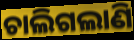
ଚାଲିଗଲାଣି